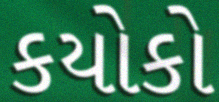
કયોકો